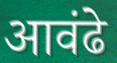
आवंढे